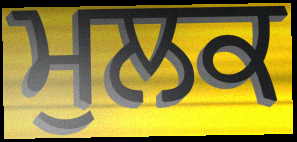
ਮੁਲਕ